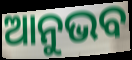
ଆନୁଭବ